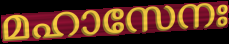
മഹാസേനഃ